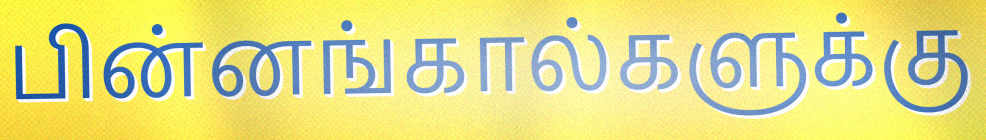
பின்னங்கால்களுக்கு